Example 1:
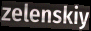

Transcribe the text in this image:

zelenskiy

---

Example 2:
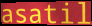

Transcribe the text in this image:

asatil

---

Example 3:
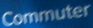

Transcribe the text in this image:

Commuter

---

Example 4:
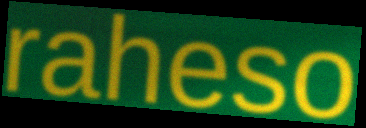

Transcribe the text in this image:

raheso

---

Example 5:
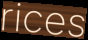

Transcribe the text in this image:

rices